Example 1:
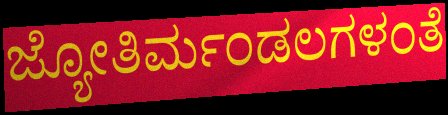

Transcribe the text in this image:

ಜ್ಯೋತಿರ್ಮಂಡಲಗಳಂತೆ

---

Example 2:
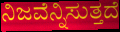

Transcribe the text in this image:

ನಿಜವೆನ್ನಿಸುತ್ತದೆ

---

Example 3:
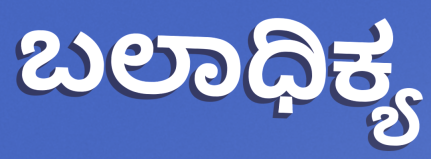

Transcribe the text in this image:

ಬಲಾಧಿಕ್ಯ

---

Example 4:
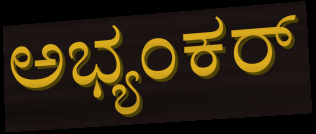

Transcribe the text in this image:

ಅಭ್ಯಂಕರ್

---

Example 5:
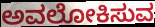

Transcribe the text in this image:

ಅವಲೋಕಿಸುವ